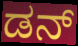
ಡನ್